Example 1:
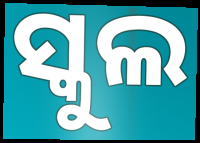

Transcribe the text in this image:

ସ୍କୁଲ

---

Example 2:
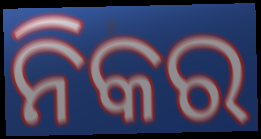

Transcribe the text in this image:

ନିକର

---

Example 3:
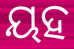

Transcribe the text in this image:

ୟହ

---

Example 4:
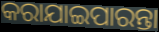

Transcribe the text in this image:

କରାଯାଇପାରନ୍ତା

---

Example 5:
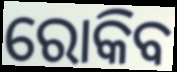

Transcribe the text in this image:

ରୋକିବ